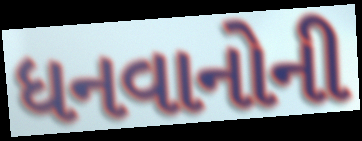
ધનવાનોની